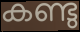
കണ്ടു